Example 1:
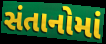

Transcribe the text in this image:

સંતાનોમાં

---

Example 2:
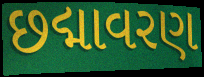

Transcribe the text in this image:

છદ્માવરણ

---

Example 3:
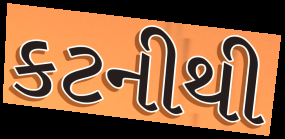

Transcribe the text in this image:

કટનીથી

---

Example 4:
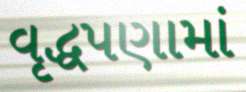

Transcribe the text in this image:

વૃદ્ધપણામાં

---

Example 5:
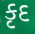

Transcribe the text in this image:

કૃદ